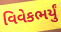
વિવેકભર્યું